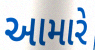
આમારે